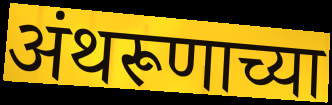
अंथरूणाच्या